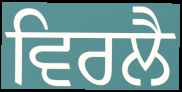
ਵਿਰਲੈ